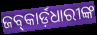
ଜବ୍‍କାର୍ଡ଼ଧାରୀଙ୍କ